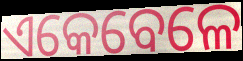
ଏକେବେଳେ